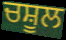
ਚਸ਼ੂਲ